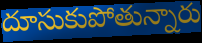
దూసుకుపోతున్నారు